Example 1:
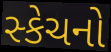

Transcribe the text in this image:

સ્કેચનો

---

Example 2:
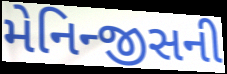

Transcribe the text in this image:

મેનિન્જીસની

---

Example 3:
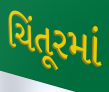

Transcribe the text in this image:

ચિંતૂરમાં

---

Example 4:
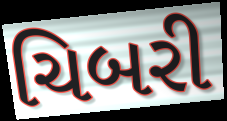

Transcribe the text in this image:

ચિબરી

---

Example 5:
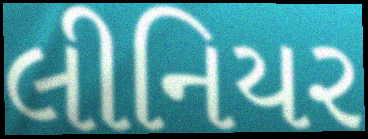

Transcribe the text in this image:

લીનિયર